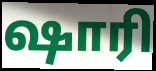
ஷாரி